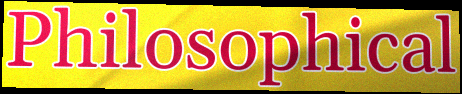
Philosophical